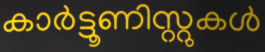
കാർട്ടൂണിസ്റ്റുകൾ